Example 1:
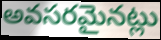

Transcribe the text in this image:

అవసరమైనట్లు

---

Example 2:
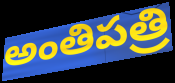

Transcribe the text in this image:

అంతిపత్రి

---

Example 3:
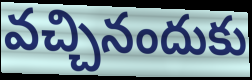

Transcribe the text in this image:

వచ్చినందుకు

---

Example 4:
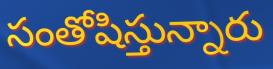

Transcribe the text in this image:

సంతోషిస్తున్నారు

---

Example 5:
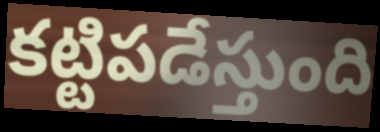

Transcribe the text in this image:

కట్టిపడేస్తుంది